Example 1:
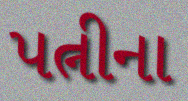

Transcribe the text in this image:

પત્નીના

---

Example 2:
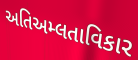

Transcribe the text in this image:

અતિઅમ્લતાવિકાર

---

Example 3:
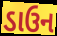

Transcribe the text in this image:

ડાઉન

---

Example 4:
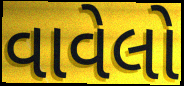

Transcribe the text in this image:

વાવેલો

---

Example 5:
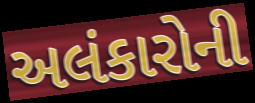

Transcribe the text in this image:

અલંકારોની